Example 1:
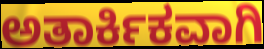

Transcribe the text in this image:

ಅತಾರ್ಕಿಕವಾಗಿ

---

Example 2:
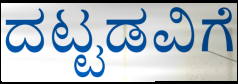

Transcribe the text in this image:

ದಟ್ಟಡವಿಗೆ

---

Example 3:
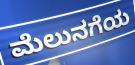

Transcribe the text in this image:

ಮೆಲುನಗೆಯ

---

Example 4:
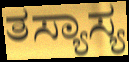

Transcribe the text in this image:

ತಸ್ಯಾಸ್ಯ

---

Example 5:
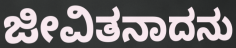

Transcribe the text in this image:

ಜೀವಿತನಾದನು